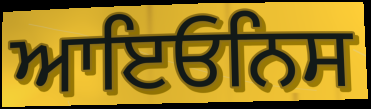
ਆਇਓਨਿਸ